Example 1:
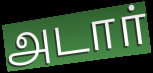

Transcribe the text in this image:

அடார்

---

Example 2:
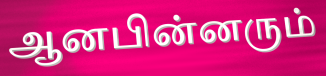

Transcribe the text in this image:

ஆனபின்னரும்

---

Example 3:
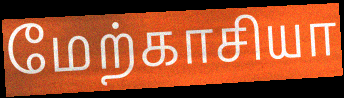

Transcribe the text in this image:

மேற்காசியா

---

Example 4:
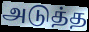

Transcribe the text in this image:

அடுத்த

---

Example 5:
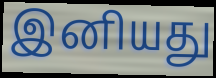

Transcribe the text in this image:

இனியது